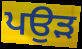
ਪਉੜ